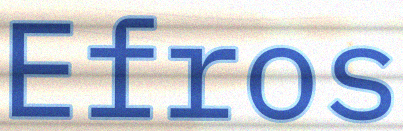
Efros